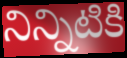
నిన్నిటికి